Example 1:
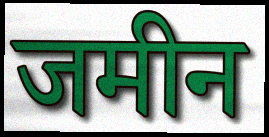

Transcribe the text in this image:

जमीन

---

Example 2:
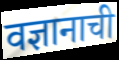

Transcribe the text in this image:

वज्ञानाची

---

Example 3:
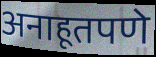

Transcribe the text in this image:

अनाहूतपणे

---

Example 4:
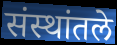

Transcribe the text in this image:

संस्थांतले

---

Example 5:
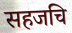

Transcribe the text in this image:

सहजचि